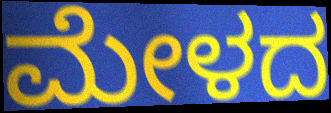
ಮೇಳದ